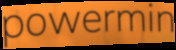
powermin